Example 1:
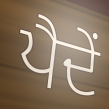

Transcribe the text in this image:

ਪੈਦੇਂ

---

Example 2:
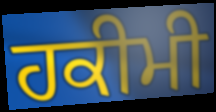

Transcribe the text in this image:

ਹਕੀਮੀ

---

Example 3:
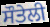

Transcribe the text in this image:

ਸੌਤੇਲੀ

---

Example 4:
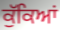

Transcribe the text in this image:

ਕੁੱਕਿਆਂ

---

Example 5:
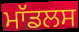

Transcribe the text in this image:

ਮਾੱਡਲਸ